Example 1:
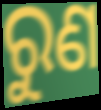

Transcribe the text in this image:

ରୁଣ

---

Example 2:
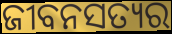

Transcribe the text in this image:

ଜୀବନସତ୍ୟର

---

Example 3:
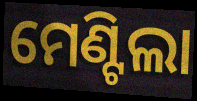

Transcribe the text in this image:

ମେଣ୍ଟିଲା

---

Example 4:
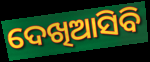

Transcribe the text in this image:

ଦେଖିଆସିବି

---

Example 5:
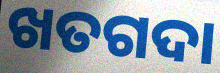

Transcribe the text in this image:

ଖତଗଦା